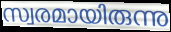
സ്വരമായിരുന്നു